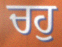
ਚਹੁ